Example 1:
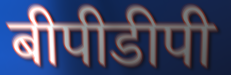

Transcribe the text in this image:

बीपीडीपी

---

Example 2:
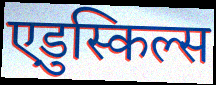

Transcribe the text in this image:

एडुस्किल्स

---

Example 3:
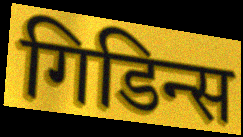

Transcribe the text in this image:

गिडिन्स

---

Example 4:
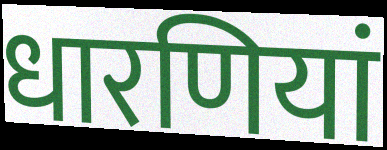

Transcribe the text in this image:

धारणियां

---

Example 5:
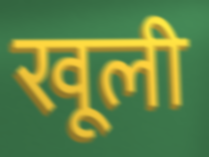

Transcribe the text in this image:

खूली